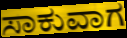
ಸಾಕುವಾಗ